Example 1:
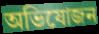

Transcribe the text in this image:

অভিযোজন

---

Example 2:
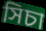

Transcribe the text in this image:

সিচা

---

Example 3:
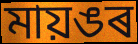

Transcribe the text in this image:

মায়ঙৰ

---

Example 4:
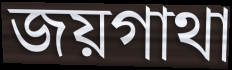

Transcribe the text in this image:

জয়গাথা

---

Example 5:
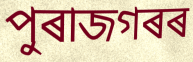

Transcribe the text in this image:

পুৰাজগৰৰ